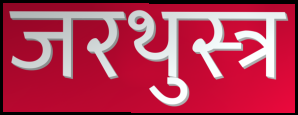
जरथुस्‍त्र